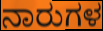
ನಾರುಗಳ